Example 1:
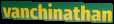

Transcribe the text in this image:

vanchinathan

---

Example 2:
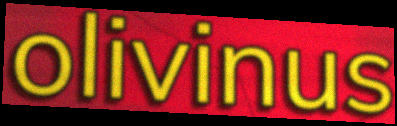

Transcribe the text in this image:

olivinus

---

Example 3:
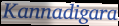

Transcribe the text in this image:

Kannadigara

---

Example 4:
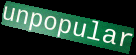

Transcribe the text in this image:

unpopular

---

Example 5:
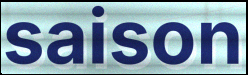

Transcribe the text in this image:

saison